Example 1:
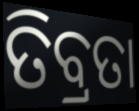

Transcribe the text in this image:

ତିବ୍ରତା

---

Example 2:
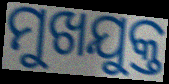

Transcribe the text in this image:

ମୁଖଯୁକ୍ତ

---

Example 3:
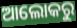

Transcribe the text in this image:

ଆଲୋକରୁ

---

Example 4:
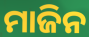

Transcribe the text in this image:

ମାଜିନ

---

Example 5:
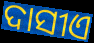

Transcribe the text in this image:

ଦାସୀଏ